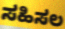
ಸಹಿಸಲ